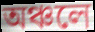
অঞ্চলে